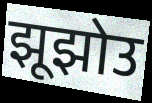
झूझोउ